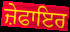
ਜ਼ੇਫਾਇਰ